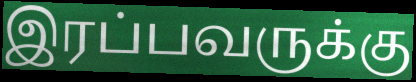
இரப்பவருக்கு